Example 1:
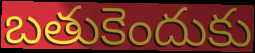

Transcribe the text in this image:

బతుకెందుకు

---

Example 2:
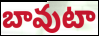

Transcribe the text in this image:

బావుటా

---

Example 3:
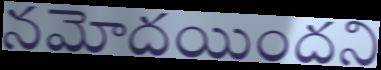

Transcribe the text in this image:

నమోదయిందని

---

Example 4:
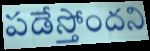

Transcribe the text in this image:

పడేస్తోందని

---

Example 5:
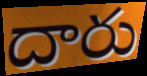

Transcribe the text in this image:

దారు